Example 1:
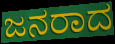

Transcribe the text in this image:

ಜನರಾದ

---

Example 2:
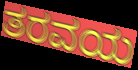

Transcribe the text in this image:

ತರವಯ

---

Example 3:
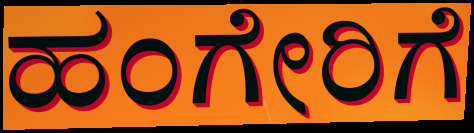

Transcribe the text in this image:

ಹಂಗೇರಿಗೆ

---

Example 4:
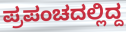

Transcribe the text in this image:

ಪ್ರಪಂಚದಲ್ಲಿದ್ದ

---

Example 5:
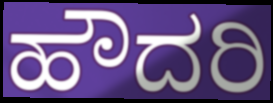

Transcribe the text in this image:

ಹೌದರಿ